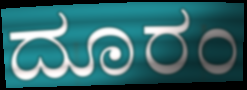
ದೂರಂ